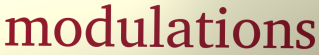
modulations